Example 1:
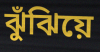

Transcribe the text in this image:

ঝুঁঝিয়ে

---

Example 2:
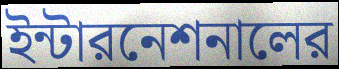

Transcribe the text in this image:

ইন্টারনেশনালের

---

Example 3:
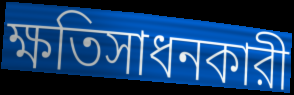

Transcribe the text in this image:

ক্ষতিসাধনকারী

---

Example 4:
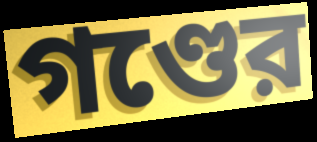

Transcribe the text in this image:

গণ্ডের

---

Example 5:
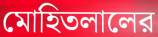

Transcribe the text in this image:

মোহিতলালের